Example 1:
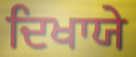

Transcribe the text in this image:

ਦਿਖਾਯੇ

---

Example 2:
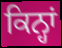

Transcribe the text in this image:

ਕਿਨ੍ਹਾਂ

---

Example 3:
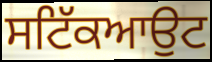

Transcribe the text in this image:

ਸਟਿੱਕਆਉਟ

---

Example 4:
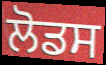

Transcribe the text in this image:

ਲੋਡਸ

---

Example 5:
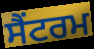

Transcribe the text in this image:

ਸੈਂਟਰਮ